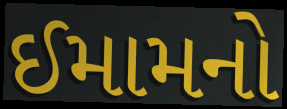
ઈમામનો